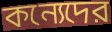
কন্যেদের